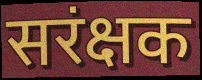
सरंक्षक